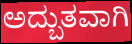
ಅದ್ಬುತವಾಗಿ